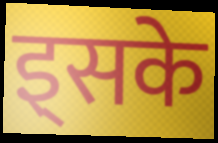
इ्सके